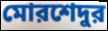
মোরশেদুর